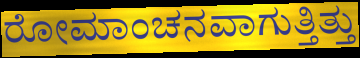
ರೋಮಾಂಚನವಾಗುತ್ತಿತ್ತು